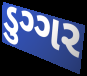
ડુગ્ગર